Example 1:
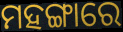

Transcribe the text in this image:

ମହଙ୍ଗାରେ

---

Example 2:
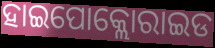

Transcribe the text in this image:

ହାଇପୋକ୍ଲୋରାଇଡ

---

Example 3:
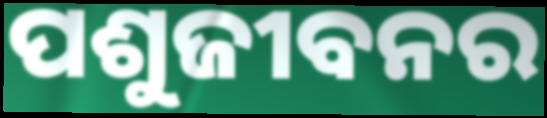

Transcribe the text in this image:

ପଶୁଜୀବନର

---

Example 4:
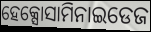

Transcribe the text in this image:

ହେକ୍ସୋସାମିନାଇଡେଜ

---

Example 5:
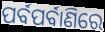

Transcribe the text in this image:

ପର୍ବପର୍ବାଣିରେ